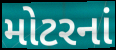
મોટરનાં